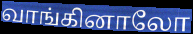
வாங்கினாலோ